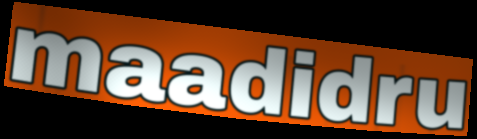
maadidru